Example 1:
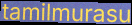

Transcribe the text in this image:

tamilmurasu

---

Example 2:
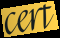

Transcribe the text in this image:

cert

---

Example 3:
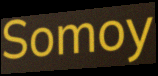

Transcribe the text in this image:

Somoy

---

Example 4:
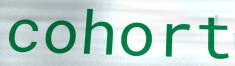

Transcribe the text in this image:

cohort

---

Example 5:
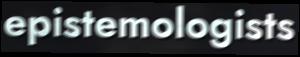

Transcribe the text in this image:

epistemologists